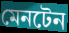
মেনটেন